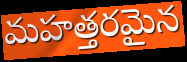
మహత్తరమైన